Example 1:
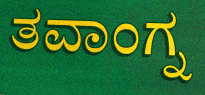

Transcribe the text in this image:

ತವಾಂಗ್ನ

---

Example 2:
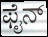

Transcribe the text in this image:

ಫೈನ್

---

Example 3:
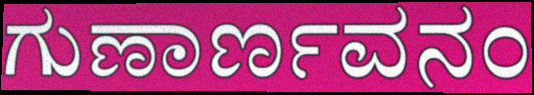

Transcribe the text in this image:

ಗುಣಾರ್ಣವನಂ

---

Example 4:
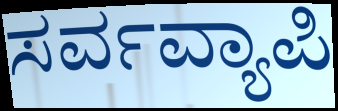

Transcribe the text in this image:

ಸರ್ವವ್ಯಾಪಿ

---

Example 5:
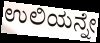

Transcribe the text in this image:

ಉಲಿಯನ್ನೇ